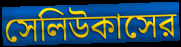
সেলিউকাসের